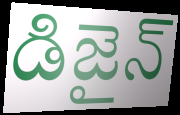
డిజైన్